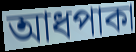
আধপাকা